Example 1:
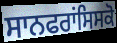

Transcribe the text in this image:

ਸਾਨਫਰਾਂਸਿਸਕੋ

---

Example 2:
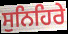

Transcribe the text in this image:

ਸੁਨਿਹਿਰੇ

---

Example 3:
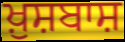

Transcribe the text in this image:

ਖ਼ੁਸ਼ਬਾਸ਼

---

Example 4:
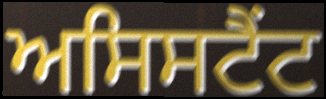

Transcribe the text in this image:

ਅਸਿਸਟੈਂਟ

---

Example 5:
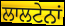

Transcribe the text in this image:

ਲਾਲਟੇਨਾਂ